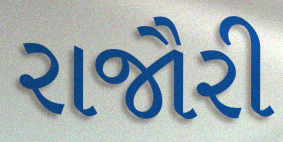
રાજૌરી